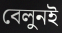
বেলুনই